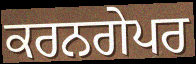
ਕਰਨਗੇਪਰ